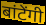
बांटेंगी